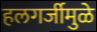
हलगर्जीमुळे